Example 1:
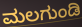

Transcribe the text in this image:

ಮಲಗುಂಡಿ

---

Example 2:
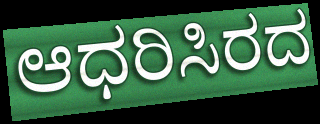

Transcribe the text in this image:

ಆಧರಿಸಿರದ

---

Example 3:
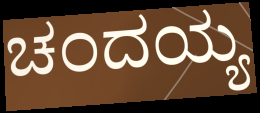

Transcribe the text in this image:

ಚಂದಯ್ಯ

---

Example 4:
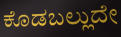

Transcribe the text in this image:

ಕೊಡಬಲ್ಲುದೇ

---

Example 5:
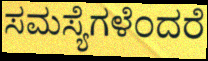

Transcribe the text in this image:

ಸಮಸ್ಯೆಗಳೆಂದರೆ